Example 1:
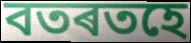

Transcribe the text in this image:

বতৰতহে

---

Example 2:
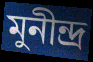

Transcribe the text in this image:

মুনীন্দ্ৰ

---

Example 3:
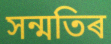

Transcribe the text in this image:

সন্মতিৰ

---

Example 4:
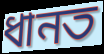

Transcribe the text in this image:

ধানত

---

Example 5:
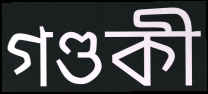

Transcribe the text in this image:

গণ্ডকী